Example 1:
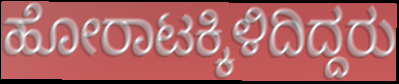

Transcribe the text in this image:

ಹೋರಾಟಕ್ಕಿಳಿದಿದ್ದರು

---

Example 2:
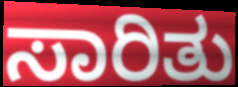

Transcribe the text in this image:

ಸಾರಿತು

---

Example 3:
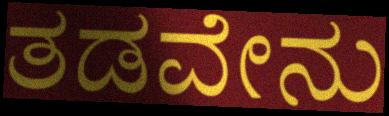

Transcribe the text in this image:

ತಡವೇನು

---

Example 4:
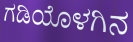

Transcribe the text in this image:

ಗಡಿಯೊಳಗಿನ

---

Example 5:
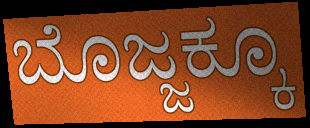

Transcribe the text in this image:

ಬೊಜ್ಜಕ್ಕೂ